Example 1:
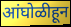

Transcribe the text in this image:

आंघोळीहून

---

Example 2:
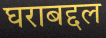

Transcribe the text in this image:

घराबद्दल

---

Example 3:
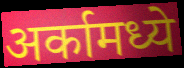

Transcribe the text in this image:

अर्कामध्ये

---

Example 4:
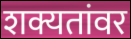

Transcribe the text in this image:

शक्यतांवर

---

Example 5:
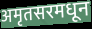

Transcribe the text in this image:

अमृतसरमधून